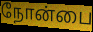
நோன்பை